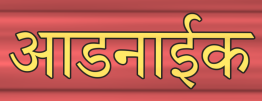
आडनाईक